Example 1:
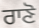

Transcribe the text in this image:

ਰਾਣੋ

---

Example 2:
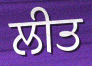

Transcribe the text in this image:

ਲੀਤ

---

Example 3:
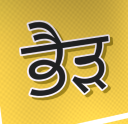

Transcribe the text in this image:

ਭੈੜ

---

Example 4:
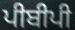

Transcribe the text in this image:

ਪੀਬੀਪੀ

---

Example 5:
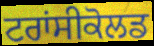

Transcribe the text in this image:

ਟਰਾਂਸੀਕੋਲਡ